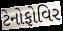
ટેનોફોવિર